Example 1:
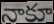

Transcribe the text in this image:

నాకూ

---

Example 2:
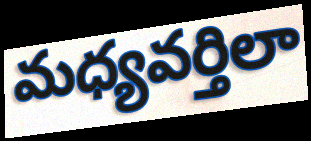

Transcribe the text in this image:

మధ్యవర్తిలా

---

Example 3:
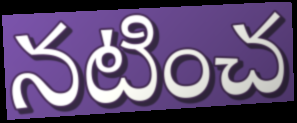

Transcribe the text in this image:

నటించ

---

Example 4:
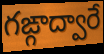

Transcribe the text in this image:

గఙ్గాద్వారే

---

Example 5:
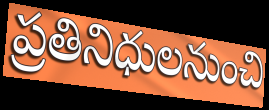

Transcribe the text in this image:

ప్రతినిధులనుంచి